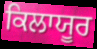
ਕਿਲਾਯੂਰ